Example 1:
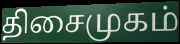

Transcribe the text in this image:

திசைமுகம்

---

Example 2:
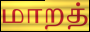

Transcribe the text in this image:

மாறத்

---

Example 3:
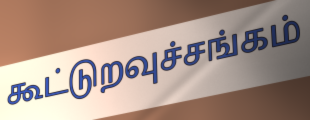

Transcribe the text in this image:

கூட்டுறவுச்சங்கம்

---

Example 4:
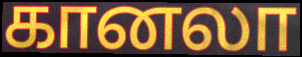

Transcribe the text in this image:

கானலா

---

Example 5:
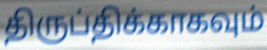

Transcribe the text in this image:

திருப்திக்காகவும்